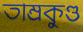
তাম্রকুণ্ড